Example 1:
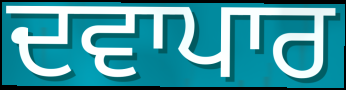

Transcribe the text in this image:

ਦਵਾਪਾਰ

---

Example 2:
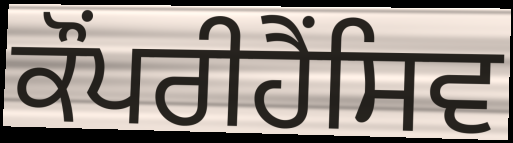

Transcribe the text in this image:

ਕੌਂਪਰੀਹੈਂਸਿਵ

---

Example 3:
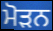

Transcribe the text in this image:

ਮੋੜਨ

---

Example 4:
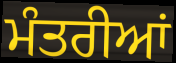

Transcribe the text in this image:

ਮੰਤਰੀਆਂ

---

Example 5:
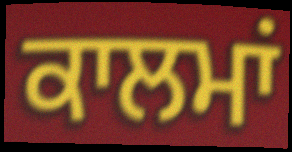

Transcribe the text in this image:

ਕਾਲਮਾਂ